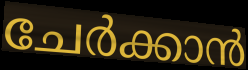
ചേർക്കാൻ